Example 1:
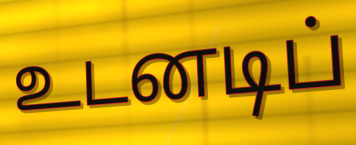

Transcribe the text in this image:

உடனடிப்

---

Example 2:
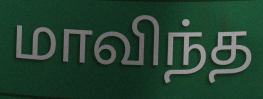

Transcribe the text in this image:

மாவிந்த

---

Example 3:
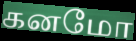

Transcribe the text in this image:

கனமோ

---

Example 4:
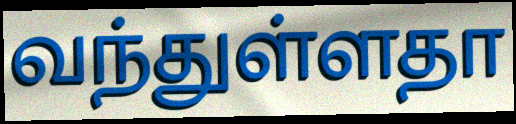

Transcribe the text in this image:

வந்துள்ளதா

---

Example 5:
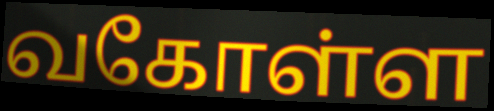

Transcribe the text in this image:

வகோள்ள